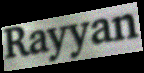
Rayyan